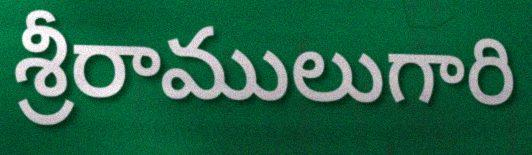
శ్రీరాములుగారి